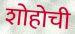
शोहोची